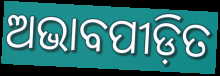
ଅଭାବପୀଡ଼ିତ